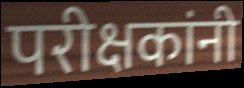
परीक्षकांनी